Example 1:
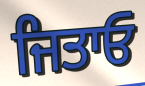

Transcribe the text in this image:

ਜਿਤਾਓ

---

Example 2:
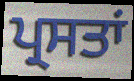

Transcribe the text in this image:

ਪ੍ਰਸਤਾਂ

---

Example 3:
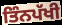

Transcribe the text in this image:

ਤਿੰਨਪੱਖੀ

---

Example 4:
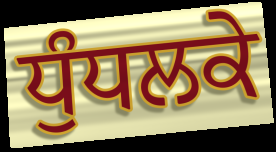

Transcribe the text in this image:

ਧੁੰਧਲਕੇ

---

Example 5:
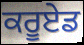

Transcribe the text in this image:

ਕਰੂਏਡ